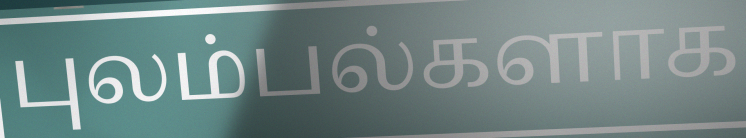
புலம்பல்களாக